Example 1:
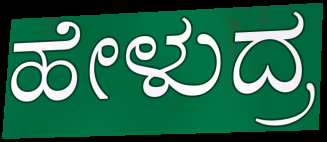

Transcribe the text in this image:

ಹೇಳುದ್ರ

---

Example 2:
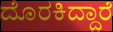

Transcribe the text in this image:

ದೊರಕಿದ್ದಾರೆ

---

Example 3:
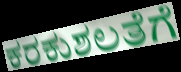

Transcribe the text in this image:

ಕರಕುಶಲತೆಗೆ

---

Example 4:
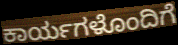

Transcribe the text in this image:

ಕಾರ್ಯಗಳೊಂದಿಗೆ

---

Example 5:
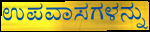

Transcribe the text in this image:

ಉಪವಾಸಗಳನ್ನು